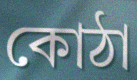
কোঠা